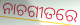
ନାଚଗୀତରେ